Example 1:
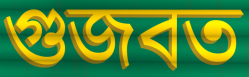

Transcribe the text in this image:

গুজবত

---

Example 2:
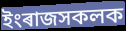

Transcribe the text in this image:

ইংৰাজসকলক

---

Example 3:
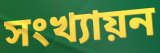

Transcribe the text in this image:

সংখ্যায়ন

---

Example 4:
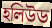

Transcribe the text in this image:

হলিউড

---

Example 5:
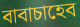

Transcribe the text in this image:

বাবাচাহেব